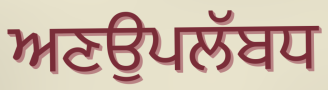
ਅਣਉਪਲੱਬਧ